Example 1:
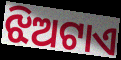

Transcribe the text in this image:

ଝିଅଟାଏ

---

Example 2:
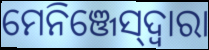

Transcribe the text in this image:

ମେନିଞ୍ଜେସ୍‌ଦ୍ୱାରା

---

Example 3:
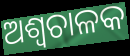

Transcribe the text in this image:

ଅଶ୍ୱଚାଳକ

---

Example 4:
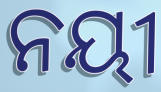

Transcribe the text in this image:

ନୟୀ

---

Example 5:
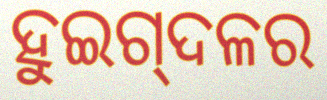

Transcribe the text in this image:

ହୁଇଗ୍‌ଦଳର